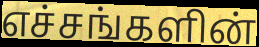
எச்சங்களின்